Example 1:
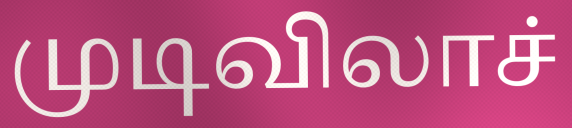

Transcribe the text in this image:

முடிவிலாச்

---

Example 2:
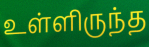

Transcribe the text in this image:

உள்ளிருந்த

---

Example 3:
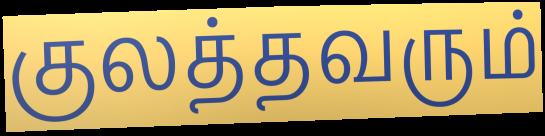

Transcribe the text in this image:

குலத்தவரும்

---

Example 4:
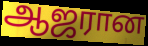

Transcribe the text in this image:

ஆஜரான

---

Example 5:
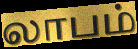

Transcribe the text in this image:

லாபம்